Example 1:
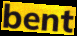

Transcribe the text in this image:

bent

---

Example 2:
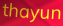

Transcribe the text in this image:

thayun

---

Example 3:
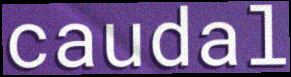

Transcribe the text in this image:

caudal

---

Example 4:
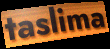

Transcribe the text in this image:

taslima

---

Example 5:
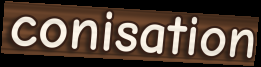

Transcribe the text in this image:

conisation